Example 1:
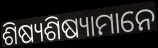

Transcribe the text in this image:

ଶିଷ୍ୟଶିଷ୍ୟାମାନେ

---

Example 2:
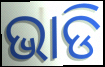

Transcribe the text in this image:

ଭାଡି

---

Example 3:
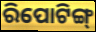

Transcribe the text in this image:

ରିପୋଟିଙ୍ଗ୍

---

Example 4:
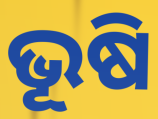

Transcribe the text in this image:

ଭୂଷି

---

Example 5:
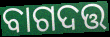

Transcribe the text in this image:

ବାଗଦତ୍ତ